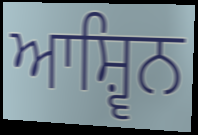
ਆਸ਼੍ਵਿਨ